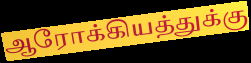
ஆரோக்கியத்துக்கு